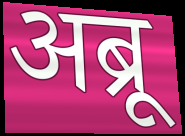
अब्रू